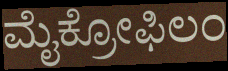
ಮೈಕ್ರೋಫಿಲಂ